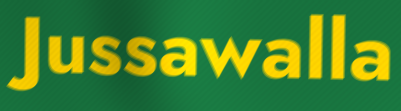
Jussawalla